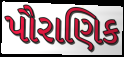
પૌરાણિક